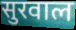
सुरवाल